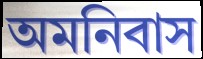
অমনিবাস